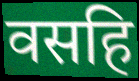
वसहि